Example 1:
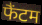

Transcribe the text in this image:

फैंटम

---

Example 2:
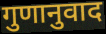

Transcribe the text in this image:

गुणानुवाद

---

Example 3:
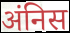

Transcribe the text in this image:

अंनिस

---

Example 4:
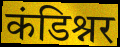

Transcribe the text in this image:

कंडिश्नर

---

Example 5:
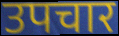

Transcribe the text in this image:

उपचार